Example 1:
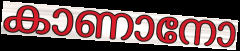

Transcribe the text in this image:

കാണാനോ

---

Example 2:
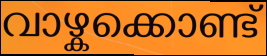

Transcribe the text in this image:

വാഴ്കക്കൊണ്ട്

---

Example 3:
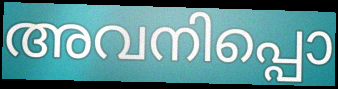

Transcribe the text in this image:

അവനിപ്പൊ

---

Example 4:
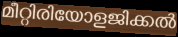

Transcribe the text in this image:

മീറ്റിരിയോളജിക്കൽ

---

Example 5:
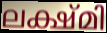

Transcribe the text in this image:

ലക്ഷ്‌മി